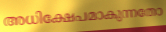
അധിക്ഷേപമാകുന്നതോ